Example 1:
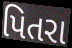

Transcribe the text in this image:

પિતરા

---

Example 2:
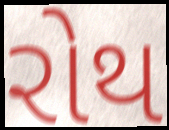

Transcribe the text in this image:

રોથ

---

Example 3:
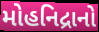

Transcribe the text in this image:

મોહનિદ્રાનો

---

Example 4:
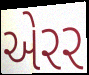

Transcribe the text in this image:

એરર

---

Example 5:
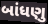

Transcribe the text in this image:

બાંધણુ